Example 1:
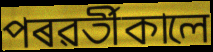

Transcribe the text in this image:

পৰৱৰ্তীকালে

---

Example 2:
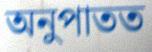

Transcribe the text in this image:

অনুপাতত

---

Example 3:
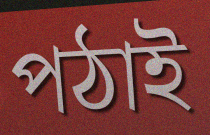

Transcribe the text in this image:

পঠাই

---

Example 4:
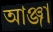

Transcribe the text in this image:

আঞ্জা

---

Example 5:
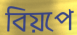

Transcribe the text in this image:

বিয়পে